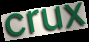
crux